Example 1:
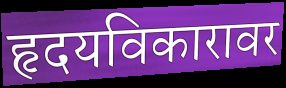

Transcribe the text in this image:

हृदयविकारावर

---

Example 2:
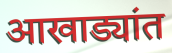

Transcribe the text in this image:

आखाड्यांत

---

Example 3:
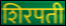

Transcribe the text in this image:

शिरपती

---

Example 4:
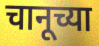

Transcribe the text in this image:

चानूच्या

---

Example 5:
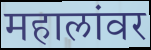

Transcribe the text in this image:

महालांवर